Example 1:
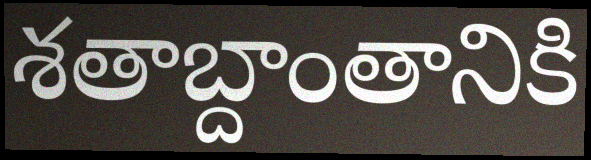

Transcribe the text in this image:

శతాబ్దాంతానికి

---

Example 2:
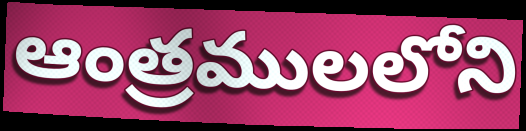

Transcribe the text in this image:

ఆంత్రములలోని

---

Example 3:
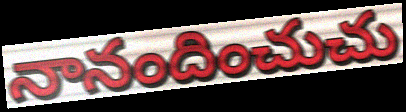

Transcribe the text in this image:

నానందించుచు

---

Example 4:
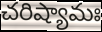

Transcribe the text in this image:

చరిష్యామః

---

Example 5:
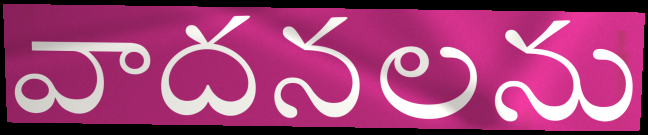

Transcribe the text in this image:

వాదనలను